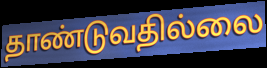
தாண்டுவதில்லை